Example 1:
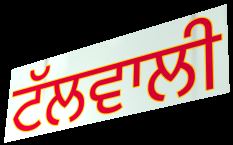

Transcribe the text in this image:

ਟੱਲਵਾਲੀ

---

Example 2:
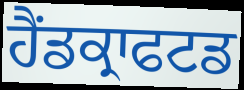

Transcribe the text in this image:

ਹੈਂਡਕ੍ਰਾਫਟਡ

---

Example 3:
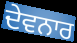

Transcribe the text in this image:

ਦੇਵਨਾਰ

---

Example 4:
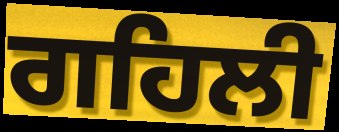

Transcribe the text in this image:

ਗਹਿਲੀ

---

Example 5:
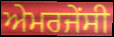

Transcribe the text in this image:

ਅੇਮਰਜੇਂਸੀ